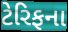
ટેરિફના